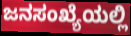
ಜನಸಂಖ್ಯೆಯಲ್ಲಿ